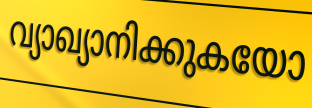
വ്യാഖ്യാനിക്കുകയോ